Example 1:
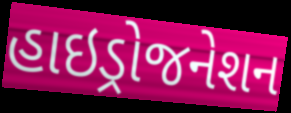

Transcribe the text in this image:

હાઇડ્રોજનેશન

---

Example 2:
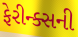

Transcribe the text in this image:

ફેરીન્ક્સની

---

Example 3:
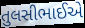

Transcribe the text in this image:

તુલસીભાઈએ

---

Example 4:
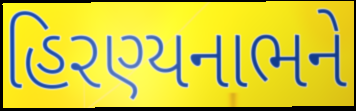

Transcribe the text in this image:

હિરણ્યનાભને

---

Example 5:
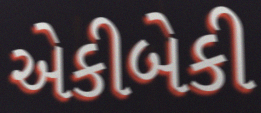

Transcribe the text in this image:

એકીબેકી